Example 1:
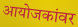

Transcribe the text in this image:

आयोजकांवर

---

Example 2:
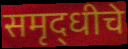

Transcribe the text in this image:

समृद्धीचे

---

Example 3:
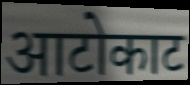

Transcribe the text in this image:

आटोकाट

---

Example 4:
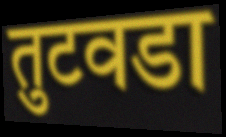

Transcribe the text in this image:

तुटवडा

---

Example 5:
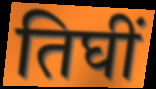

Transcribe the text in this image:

तिघीं